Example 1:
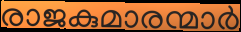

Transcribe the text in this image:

രാജകുമാരന്മാർ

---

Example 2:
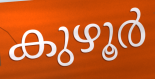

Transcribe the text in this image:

കുഴൂർ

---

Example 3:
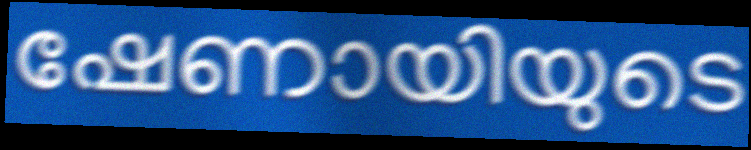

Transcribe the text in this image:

ഷേണായിയുടെ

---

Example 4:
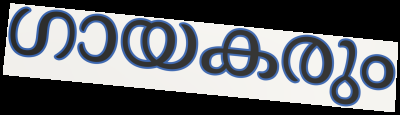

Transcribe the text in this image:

ഗായകരും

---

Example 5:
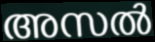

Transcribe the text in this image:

അസൽ